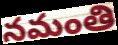
నమంతి